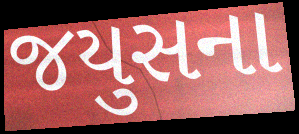
જયુસના